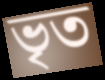
ভৃত